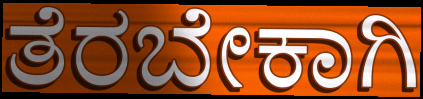
ತೆರಬೇಕಾಗಿ